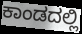
ಕಾಂಡದಲ್ಲಿ